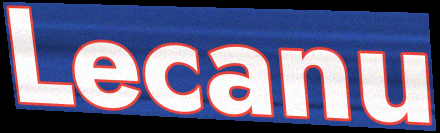
Lecanu